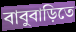
বাবুবাড়িতে